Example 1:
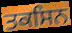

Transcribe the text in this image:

ਤਕਸਿਨ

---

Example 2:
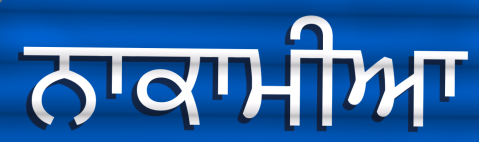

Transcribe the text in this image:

ਨਾਕਾਮੀਆ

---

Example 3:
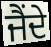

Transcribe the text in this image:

ਜੈਂਦੇ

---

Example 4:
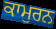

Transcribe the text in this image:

ਕਾਮੁਰਨ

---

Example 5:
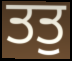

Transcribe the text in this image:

ਤਤੁ